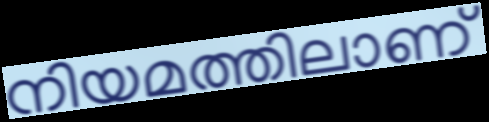
നിയമത്തിലാണ്